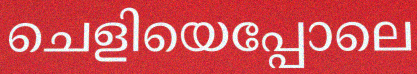
ചെളിയെപ്പോലെ